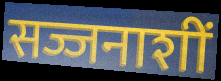
सज्जनाशीं